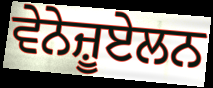
ਵੇਨੇਜ਼ੂਏਲਨ